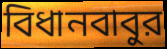
বিধানবাবুর